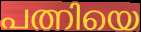
പത്നിയെ